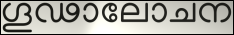
ഗൂഢാലോചന